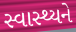
સ્વાસ્થ્યને